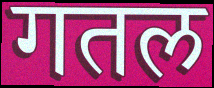
गतल